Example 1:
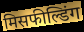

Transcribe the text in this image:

मिसफील्डिंग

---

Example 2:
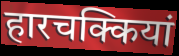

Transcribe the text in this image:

हारचक्कियां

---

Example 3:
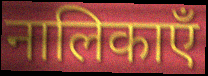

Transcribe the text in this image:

नालिकाएँ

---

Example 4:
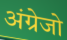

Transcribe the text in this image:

अंग्रेजो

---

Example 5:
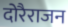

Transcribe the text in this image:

दोरैराजन